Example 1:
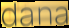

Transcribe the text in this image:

dana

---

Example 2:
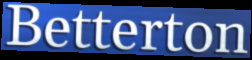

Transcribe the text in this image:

Betterton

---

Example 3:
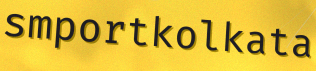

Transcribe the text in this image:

smportkolkata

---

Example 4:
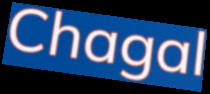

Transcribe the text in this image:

Chagal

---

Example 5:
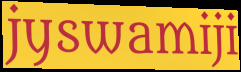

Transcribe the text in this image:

jyswamiji